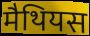
मैथियस